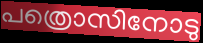
പത്രൊസിനോടു